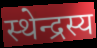
स्थेन्द्रस्य